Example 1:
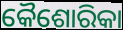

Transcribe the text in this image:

କୈଶୋରିକା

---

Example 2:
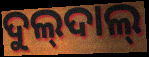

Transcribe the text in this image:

ଦୁଲ୍‍ଦାଲ୍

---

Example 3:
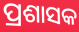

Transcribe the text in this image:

ପ୍ରଶାସକ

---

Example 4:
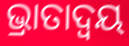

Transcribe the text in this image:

ଭ୍ରାତାଦ୍ୱୟ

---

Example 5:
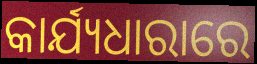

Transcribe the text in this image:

କାର୍ଯ୍ୟଧାରାରେ